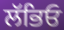
ਲੱਭਿਓ